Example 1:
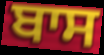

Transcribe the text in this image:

ਬਾਸ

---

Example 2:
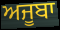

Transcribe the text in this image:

ਅਜੂਬਾ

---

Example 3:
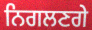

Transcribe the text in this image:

ਨਿਗਲਣਗੇ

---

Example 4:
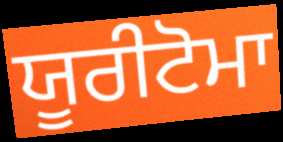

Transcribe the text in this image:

ਯੂਰੀਟੋਮਾ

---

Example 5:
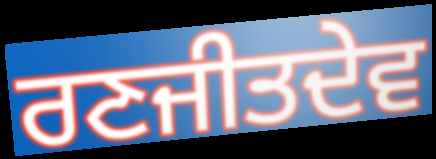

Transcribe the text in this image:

ਰਣਜੀਤਦੇਵ